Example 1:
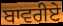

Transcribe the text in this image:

ਬਾਵਰੀਏ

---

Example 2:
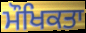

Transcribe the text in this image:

ਮੌਖਿਕਤਾ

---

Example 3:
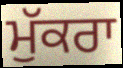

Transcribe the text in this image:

ਮੁੱਕਰਾ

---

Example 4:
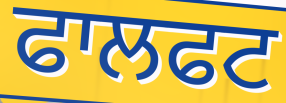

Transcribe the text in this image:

ਫਾਲਫਟ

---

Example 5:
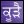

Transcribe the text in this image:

ਕੂੜੈ